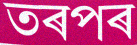
তৰপৰ